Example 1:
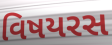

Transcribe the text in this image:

વિષયરસ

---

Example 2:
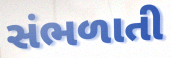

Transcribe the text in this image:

સંભળાતી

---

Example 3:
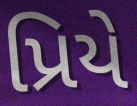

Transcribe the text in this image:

પ્રિયે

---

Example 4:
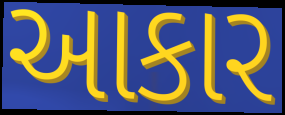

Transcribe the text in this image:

આકાર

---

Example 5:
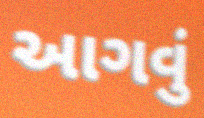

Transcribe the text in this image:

આગવું